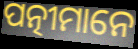
ପତ୍ନୀମାନେ